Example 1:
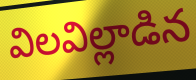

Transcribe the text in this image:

విలవిల్లాడిన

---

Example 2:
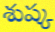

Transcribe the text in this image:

శుష్క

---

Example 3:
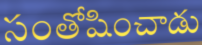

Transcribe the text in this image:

సంతోషించాడు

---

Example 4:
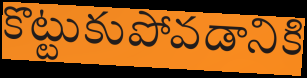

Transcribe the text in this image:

కొట్టుకుపోవడానికి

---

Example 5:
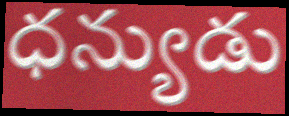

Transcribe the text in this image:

ధన్యుడు